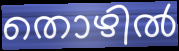
തൊഴിൽ